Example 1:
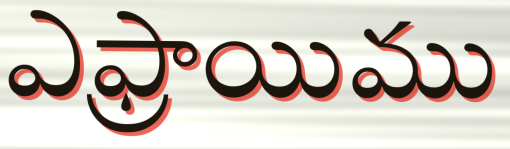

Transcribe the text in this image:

ఎఫ్రాయిము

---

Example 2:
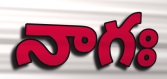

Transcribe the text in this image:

నాగః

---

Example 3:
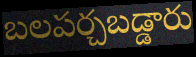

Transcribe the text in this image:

బలపర్చబడ్డారు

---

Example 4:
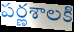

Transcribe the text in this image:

పర్ణశాలకి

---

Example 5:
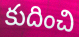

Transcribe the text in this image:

కుదించి